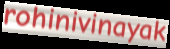
rohinivinayak